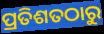
ପ୍ରତିଶତଠାରୁ